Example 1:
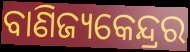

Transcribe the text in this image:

ବାଣିଜ୍ୟକେନ୍ଦ୍ରର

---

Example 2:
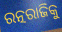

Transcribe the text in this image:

ରତ୍ନରାଜିକୁ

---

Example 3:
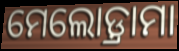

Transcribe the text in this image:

ମେଲୋଡ଼୍ରାମା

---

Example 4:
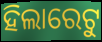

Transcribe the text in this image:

ହିଲାରେଟୁ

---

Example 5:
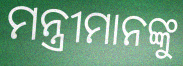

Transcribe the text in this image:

ମନ୍ତ୍ରୀମାନଙ୍କୁ